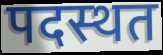
पदस्थत